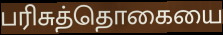
பரிசுத்தொகையை